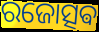
ରଜୋତ୍ସଵ